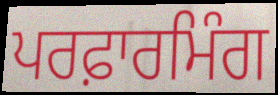
ਪਰਫ਼ਾਰਮਿੰਗ